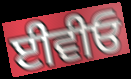
ਈਵੀਓ